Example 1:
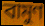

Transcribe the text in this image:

বামুণ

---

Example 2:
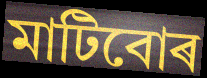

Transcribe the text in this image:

মাটিবোৰ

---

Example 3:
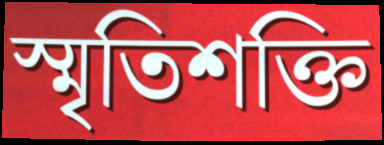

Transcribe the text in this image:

স্মৃতিশক্তি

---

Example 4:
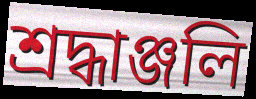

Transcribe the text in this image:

শ্ৰদ্ধাঞ্জলি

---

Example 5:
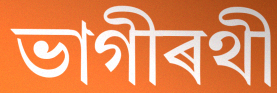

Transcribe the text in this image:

ভাগীৰথী